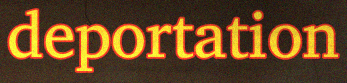
deportation